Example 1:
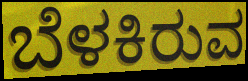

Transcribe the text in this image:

ಬೆಳಕಿರುವ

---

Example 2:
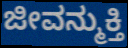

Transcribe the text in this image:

ಜೀವನ್ಮುಕ್ತಿ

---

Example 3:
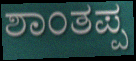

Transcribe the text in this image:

ಶಾಂತಪ್ಪ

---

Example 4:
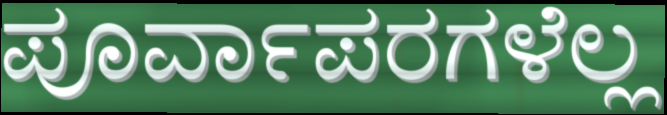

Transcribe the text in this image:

ಪೂರ್ವಾಪರಗಳೆಲ್ಲ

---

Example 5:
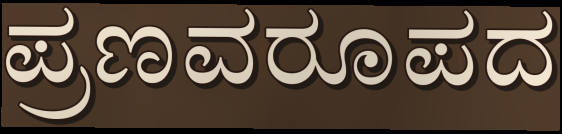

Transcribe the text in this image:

ಪ್ರಣವರೂಪದ